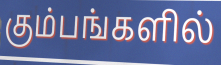
கும்பங்களில்